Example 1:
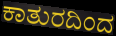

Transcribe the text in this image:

ಕಾತುರದಿಂದ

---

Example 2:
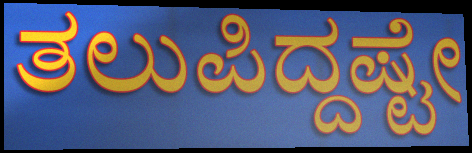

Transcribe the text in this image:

ತಲುಪಿದ್ದಷ್ಟೇ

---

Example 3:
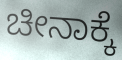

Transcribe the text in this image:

ಚೀನಾಕ್ಕೆ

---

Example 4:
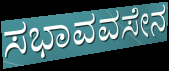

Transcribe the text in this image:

ಸಭಾವವಸೇನ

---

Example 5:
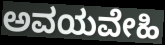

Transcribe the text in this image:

ಅವಯವೇಹಿ